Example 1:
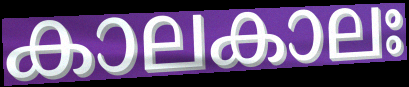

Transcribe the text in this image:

കാലകാലഃ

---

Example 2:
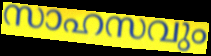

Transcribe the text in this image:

സാഹസവും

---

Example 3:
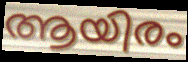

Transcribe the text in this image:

ആയിരം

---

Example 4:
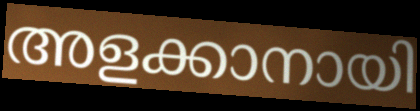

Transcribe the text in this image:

അളക്കാനായി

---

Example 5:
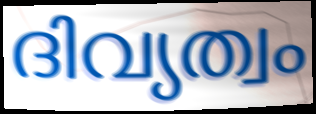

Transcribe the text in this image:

ദിവ്യത്വം